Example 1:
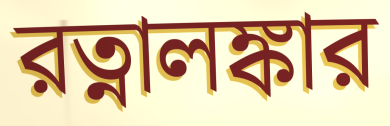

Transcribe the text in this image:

রত্নালঙ্কার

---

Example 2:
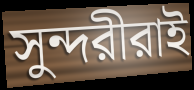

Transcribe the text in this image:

সুন্দরীরাই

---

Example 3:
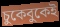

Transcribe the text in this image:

চুকেবুকেই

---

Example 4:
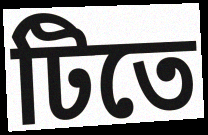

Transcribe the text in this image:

টিতে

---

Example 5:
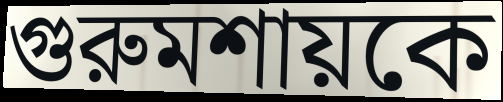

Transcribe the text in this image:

গুরুমশায়কে